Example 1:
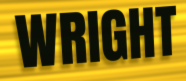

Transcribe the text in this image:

WRIGHT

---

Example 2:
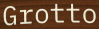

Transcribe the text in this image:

Grotto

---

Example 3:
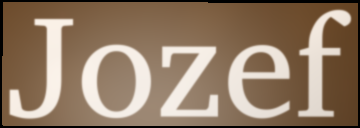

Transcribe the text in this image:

Jozef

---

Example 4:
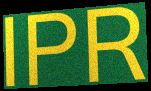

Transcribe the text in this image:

IPR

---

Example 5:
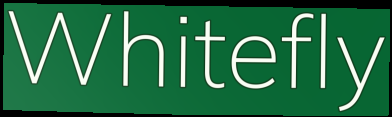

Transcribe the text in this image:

Whitefly